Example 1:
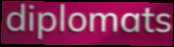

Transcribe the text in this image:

diplomats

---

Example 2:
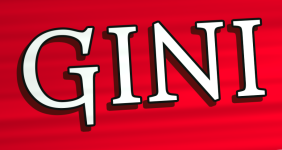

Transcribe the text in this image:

GINI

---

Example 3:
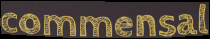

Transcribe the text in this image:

commensal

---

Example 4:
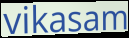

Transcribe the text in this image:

vikasam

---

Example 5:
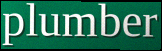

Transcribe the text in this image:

plumber